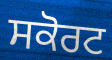
ਸਕੋਰਟ